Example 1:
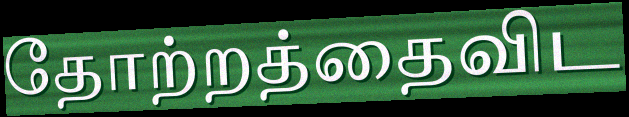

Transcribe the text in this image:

தோற்றத்தைவிட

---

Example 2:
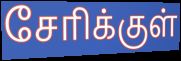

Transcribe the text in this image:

சேரிக்குள்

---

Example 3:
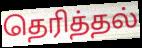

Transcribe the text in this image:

தெரித்தல்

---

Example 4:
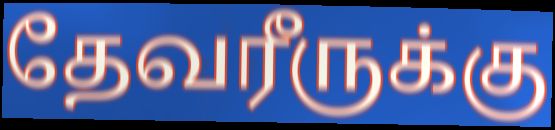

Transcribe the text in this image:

தேவரீருக்கு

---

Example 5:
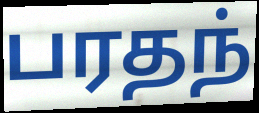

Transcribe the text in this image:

பரதந்